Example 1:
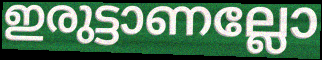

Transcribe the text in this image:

ഇരുട്ടാണല്ലോ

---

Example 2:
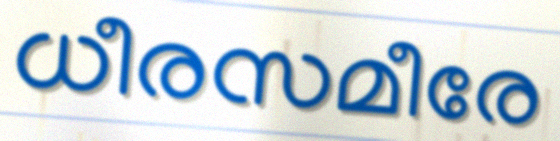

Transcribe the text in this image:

ധീരസമീരേ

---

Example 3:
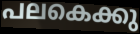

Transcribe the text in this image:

പലകെക്കു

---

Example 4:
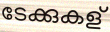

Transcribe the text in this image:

ടേക്കുകള്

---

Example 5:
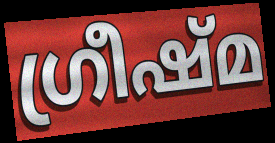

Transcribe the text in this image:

ഗ്രീഷ്മ